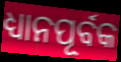
ଧ୍ୟାନପୂର୍ବକ